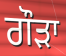
ਗੌੜਾ